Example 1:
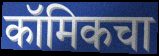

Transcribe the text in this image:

कॉमिकचा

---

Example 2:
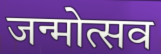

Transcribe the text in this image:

जन्मोत्सव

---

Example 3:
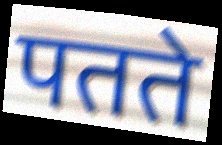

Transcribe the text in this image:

पतते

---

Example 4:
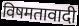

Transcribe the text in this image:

विषमतावादी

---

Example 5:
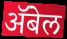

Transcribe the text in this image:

ॲबेल